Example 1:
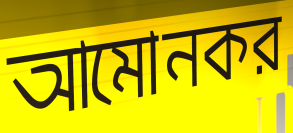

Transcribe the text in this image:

আমোনকর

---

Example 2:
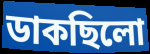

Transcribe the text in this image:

ডাকছিলো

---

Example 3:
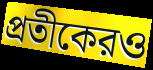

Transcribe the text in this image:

প্রতীকেরও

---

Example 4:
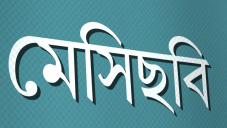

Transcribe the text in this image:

মেসিছবি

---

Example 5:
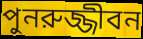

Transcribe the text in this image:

পুনরুজ্জীবন